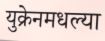
युक्रेनमधल्या